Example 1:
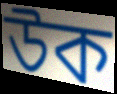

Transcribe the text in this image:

উক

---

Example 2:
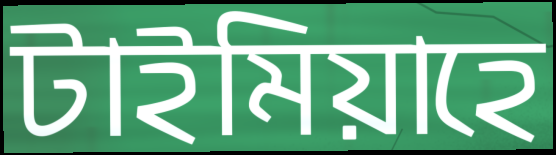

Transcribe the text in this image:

টাইমিয়াহে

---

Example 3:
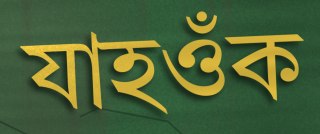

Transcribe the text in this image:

যাহওঁক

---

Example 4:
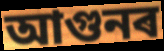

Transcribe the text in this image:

আগুনৰ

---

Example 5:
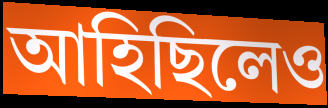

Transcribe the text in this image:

আহিছিলেও